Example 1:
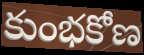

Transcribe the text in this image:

కుంభకోణ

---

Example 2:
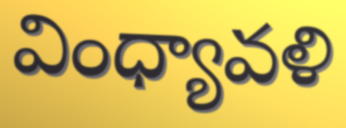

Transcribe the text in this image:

వింధ్యావళి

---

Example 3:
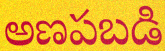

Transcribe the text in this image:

అణపబడి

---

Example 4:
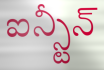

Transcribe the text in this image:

ఐన్స్టీన్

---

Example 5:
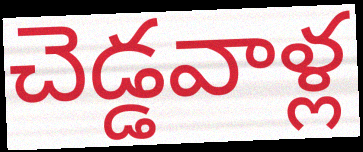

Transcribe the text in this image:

చెడ్డవాళ్ల